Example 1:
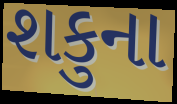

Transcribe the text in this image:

શકુના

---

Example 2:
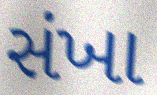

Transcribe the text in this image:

સંખા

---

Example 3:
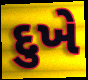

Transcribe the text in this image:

દુખે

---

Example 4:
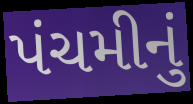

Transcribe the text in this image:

પંચમીનું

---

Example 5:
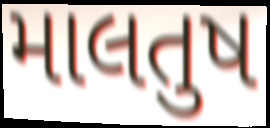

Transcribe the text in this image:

માલતુષ